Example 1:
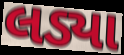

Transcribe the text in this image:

લડ્યા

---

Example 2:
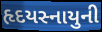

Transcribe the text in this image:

હૃદયસ્નાયુની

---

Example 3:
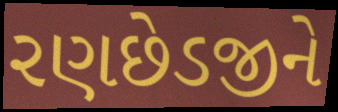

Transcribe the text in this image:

રણછેડજીને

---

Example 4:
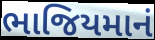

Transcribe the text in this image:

ભાજિયમાનં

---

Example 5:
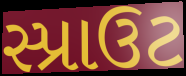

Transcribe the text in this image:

સ્પ્રાઉટ